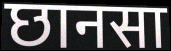
छानसा